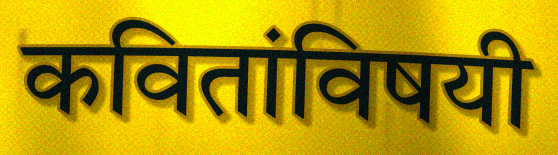
कवितांविषयी